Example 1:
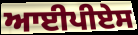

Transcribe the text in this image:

ਆਈਪੀਏਸ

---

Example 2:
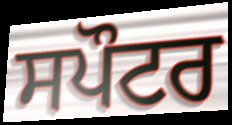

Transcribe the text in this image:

ਸਪੌਟਰ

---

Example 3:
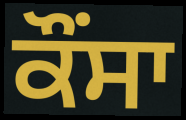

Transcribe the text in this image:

ਕੌਂਸਾ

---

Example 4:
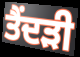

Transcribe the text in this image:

ਤੈਂਦੜੀ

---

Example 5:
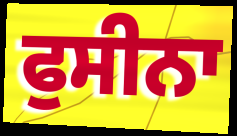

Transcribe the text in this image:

ਫੁਸੀਨਾ